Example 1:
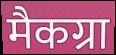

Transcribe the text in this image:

मैकग्रा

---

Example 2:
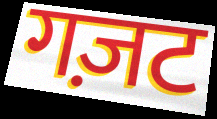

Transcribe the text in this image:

गज़ट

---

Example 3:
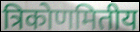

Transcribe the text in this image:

त्रिकोणमितीय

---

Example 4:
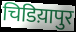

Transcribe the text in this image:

चिडिय़ापुर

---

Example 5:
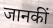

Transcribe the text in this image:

जानकीं